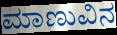
ಮಾಣುವಿನ